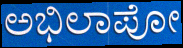
ಅಭಿಲಾಪೋ